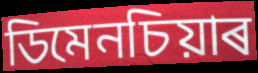
ডিমেনচিয়াৰ